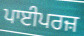
ਪਾਈਪਰਜ਼